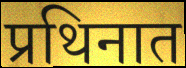
प्रथिनात